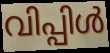
വിപ്പിൾ